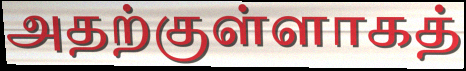
அதற்குள்ளாகத்